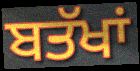
ਬਤੱਖਾਂ